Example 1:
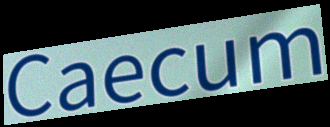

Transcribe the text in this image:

Caecum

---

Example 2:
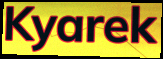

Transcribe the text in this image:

Kyarek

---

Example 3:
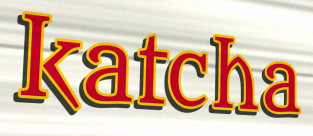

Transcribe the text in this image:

katcha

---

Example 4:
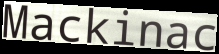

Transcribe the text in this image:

Mackinac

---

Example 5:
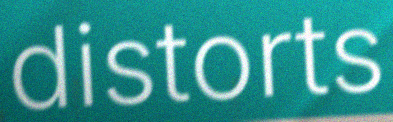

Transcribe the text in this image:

distorts